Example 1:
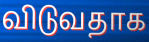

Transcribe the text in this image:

விடுவதாக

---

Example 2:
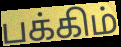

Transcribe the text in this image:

பக்கிம்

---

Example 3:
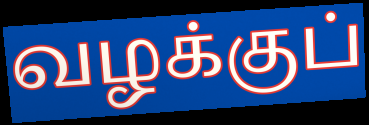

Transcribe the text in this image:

வழக்குப்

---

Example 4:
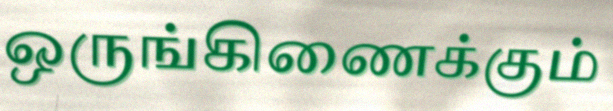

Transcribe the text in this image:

ஒருங்கிணைக்கும்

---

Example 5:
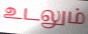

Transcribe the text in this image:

உடலும்